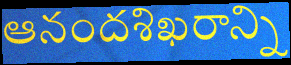
ఆనందశిఖరాన్ని